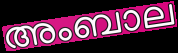
അംബാല